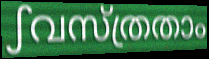
ഽവസ്ത്രതാം